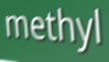
methyl